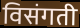
विसंगती